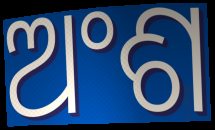
ଅଂଶ